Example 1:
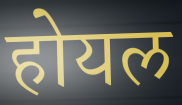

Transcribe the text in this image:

होयल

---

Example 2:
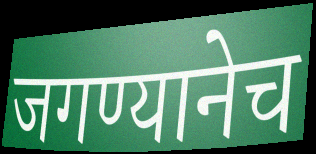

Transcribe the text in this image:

जगण्यानेच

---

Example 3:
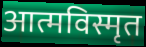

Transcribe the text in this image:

आत्मविस्मृत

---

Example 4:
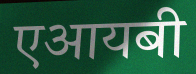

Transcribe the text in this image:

एआयबी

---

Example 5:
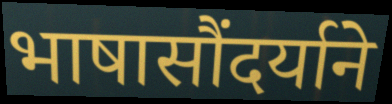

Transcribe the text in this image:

भाषासौंदर्याने